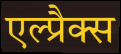
एल्प्रैक्स